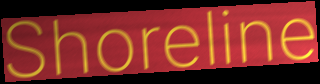
Shoreline